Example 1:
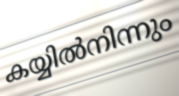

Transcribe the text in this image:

കയ്യിൽനിന്നും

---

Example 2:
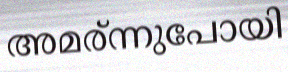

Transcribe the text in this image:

അമര്ന്നുപോയി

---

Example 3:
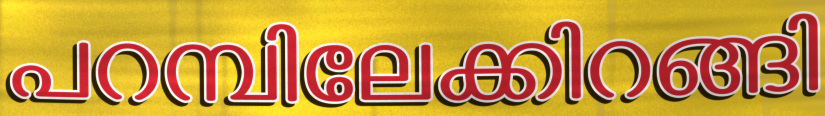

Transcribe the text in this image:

പറമ്പിലേക്കിറങ്ങി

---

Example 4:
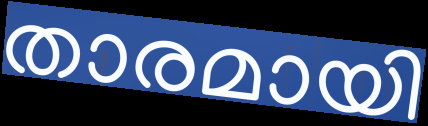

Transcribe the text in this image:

താരമായി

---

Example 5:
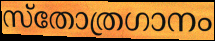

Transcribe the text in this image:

സ്തോത്രഗാനം